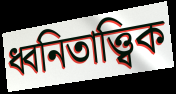
ধ্বনিতাত্ত্বিক